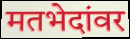
मतभेदांवर